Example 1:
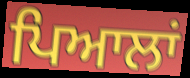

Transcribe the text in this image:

ਪਿਆਲਾਂ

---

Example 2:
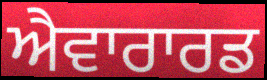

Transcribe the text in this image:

ਐਵਾਰਾਰਡ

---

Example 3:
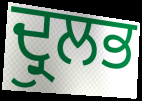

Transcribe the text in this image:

ਦ੍ਰੁਲਭ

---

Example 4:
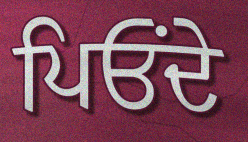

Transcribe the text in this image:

ਪਿਓਂਦੇ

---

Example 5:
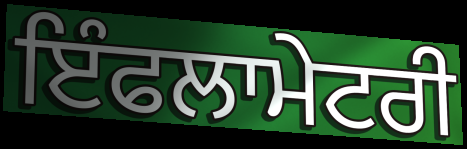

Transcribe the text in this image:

ਇੰਫਲਾਮੇਟਰੀ